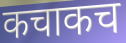
कचाकच